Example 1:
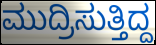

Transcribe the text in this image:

ಮುದ್ರಿಸುತ್ತಿದ್ದ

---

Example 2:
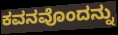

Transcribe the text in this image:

ಕವನವೊಂದನ್ನು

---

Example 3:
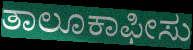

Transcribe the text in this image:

ತಾಲೂಕಾಫೀಸು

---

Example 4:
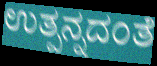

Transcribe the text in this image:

ಉತ್ಪನ್ನದಂತೆ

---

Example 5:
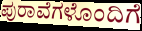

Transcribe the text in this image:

ಪುರಾವೆಗಳೊಂದಿಗೆ